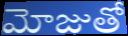
మోజుతో